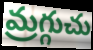
మ్రగ్గుచు